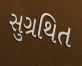
સુગ્રથિત